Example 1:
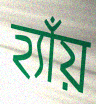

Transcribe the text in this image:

হ্যাঁয়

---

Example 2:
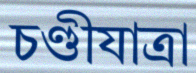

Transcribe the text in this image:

চণ্ডীযাত্রা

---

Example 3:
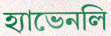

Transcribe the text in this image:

হ্যাভেনলি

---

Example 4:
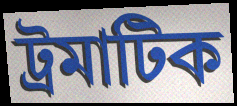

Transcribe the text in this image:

ট্রমাটিক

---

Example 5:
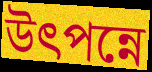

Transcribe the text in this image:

উৎপন্নে